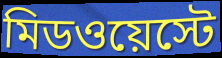
মিডওয়েস্টে